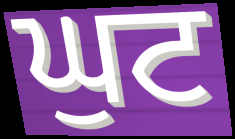
ਘੁਟ